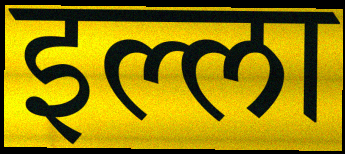
इल्ला